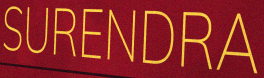
SURENDRA